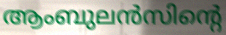
ആംബുലൻസിന്റെ